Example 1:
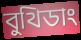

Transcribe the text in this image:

বুথিডাং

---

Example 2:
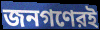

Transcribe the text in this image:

জনগণেরই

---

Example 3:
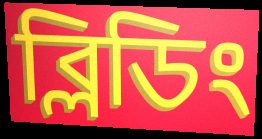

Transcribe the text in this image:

ব্লিডিং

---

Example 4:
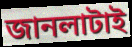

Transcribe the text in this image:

জানলাটাই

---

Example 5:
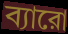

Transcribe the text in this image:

ব্যারো